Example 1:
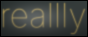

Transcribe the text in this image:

reallly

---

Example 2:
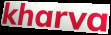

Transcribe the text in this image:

kharva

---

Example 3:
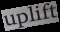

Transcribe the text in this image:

uplift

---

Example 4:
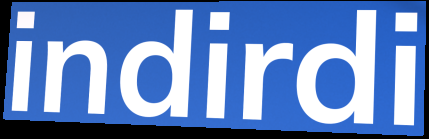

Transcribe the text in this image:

indirdi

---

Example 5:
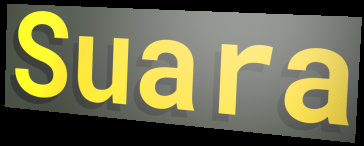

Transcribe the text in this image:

Suara